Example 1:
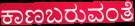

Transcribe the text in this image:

ಕಾಣಬರುವಂತೆ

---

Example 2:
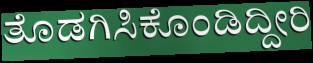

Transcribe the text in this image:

ತೊಡಗಿಸಿಕೊಂಡಿದ್ದೀರಿ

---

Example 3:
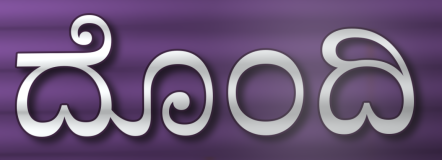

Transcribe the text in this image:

ದೊಂದಿ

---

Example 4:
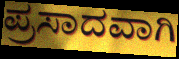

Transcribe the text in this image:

ಪ್ರಸಾದವಾಗಿ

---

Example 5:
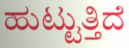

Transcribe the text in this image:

ಹುಟ್ಟುತ್ತಿದೆ